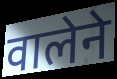
वालेने